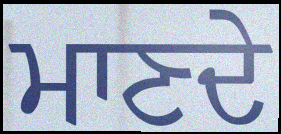
ਮਾਣਦੇ